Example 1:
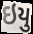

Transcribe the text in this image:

ઇયુ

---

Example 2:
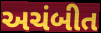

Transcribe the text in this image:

અચંબીત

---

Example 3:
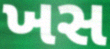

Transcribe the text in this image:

ખસ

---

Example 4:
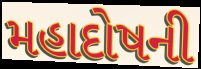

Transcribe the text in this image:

મહાદોષની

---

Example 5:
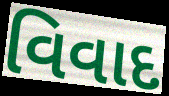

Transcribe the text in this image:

વિવાદ